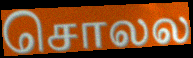
சொலல